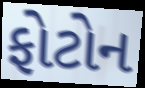
ફોટોન